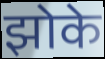
झोके